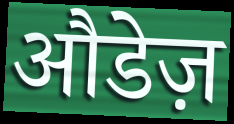
औडेज़